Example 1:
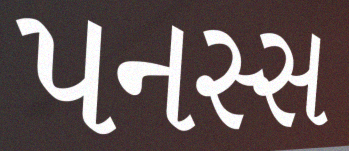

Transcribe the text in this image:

પનસ્સ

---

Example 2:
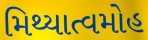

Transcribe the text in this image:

મિથ્યાત્વમોહ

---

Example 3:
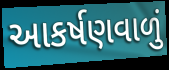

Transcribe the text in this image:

આકર્ષણવાળું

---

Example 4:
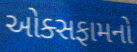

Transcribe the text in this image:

ઓક્સફામનો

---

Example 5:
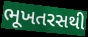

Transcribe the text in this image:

ભૂખતરસથી